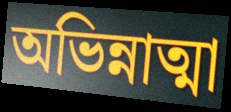
অভিন্নাত্মা